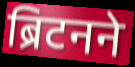
ब्रिटनने